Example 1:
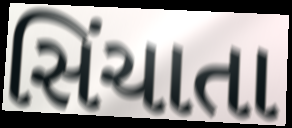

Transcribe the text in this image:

સિંચાતા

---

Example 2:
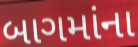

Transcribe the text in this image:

બાગમાંના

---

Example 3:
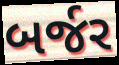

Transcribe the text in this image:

બર્જર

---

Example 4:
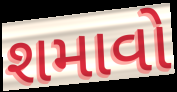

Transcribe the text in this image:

શમાવો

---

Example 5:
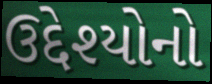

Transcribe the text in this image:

ઉદ્દેશ્યોનો